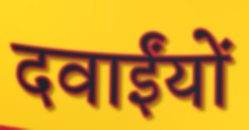
दवाईंयों